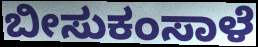
ಬೀಸುಕಂಸಾಳೆ